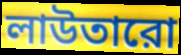
লাউতারো